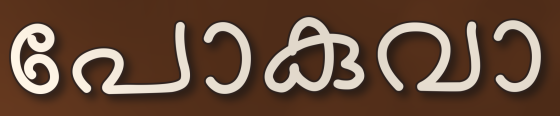
പോകുവാ